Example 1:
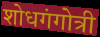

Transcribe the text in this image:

शोधगंगोत्री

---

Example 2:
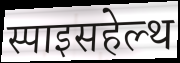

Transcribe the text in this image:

स्पाइसहेल्थ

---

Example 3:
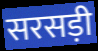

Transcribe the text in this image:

सरसड़ी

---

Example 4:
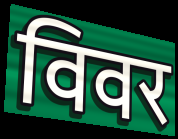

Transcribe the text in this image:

विवर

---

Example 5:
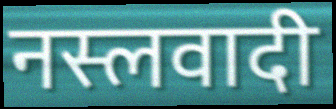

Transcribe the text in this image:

नस्लवादी